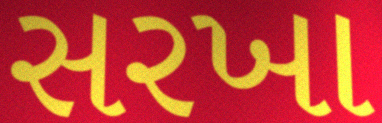
સરખા